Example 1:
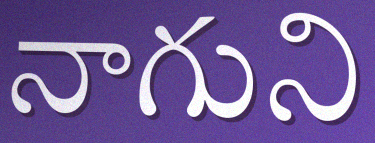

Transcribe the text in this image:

నాగుని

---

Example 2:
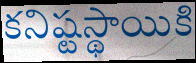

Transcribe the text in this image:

కనిష్టస్థాయికి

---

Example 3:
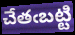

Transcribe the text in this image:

చేతఁబట్టి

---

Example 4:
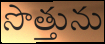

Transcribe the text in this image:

సొత్తును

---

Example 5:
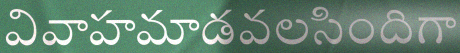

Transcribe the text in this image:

వివాహమాడవలసిందిగా